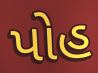
પોહ